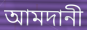
আমদানী